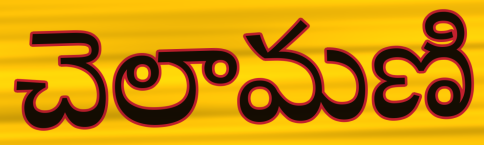
చెలామణి